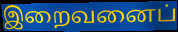
இறைவனைப்